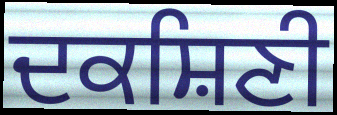
ਦਕਸ਼ਿਣੀ